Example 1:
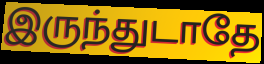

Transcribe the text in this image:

இருந்துடாதே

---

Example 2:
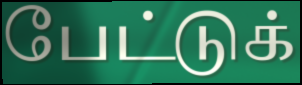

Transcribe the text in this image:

பேட்டுக்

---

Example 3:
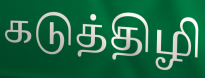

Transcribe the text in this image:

கடுத்திழி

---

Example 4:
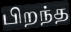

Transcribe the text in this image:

பிறந்த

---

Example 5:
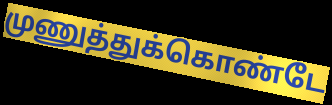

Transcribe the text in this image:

முணுத்துக்கொண்டே